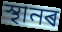
স্থানৰ